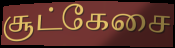
சூட்கேசை